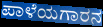
ಪಾಳೆಯಗಾರನ